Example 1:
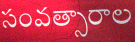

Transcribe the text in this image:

సంవత్సారాల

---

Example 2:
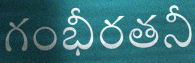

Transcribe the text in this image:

గంభీరతనీ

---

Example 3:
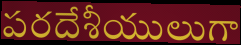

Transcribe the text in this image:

పరదేశీయులుగా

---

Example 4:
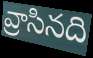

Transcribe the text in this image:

వ్రాసినది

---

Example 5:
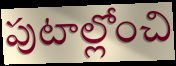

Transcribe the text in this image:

పుటాల్లోంచి